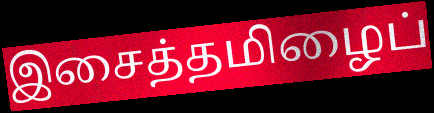
இசைத்தமிழைப்